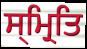
ਸ੍ਮ੍ਰਿਤਿ